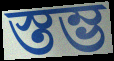
স্তম্ভ